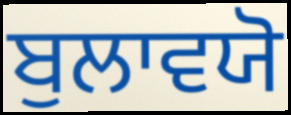
ਬੁਲਾਵਯੋ